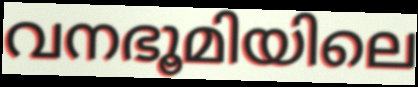
വനഭൂമിയിലെ